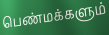
பெண்மக்களும்